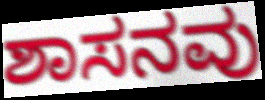
ಶಾಸನವು